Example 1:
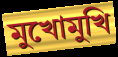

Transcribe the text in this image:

মুখোমুখি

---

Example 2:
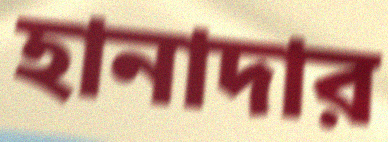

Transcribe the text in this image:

হানাদার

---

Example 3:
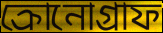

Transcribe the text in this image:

ক্রোনোগ্রাফ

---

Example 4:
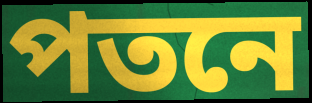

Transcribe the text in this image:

পতনে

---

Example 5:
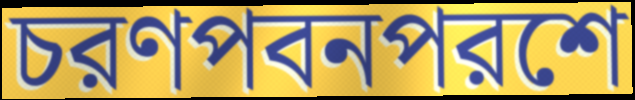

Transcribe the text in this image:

চরণপবনপরশে